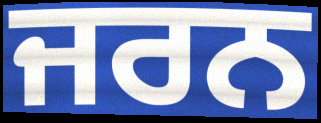
ਜਰਨ